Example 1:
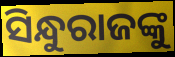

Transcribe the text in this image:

ସିନ୍ଧୁରାଜଙ୍କୁ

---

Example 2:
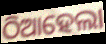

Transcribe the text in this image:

ଠିଆହେଲା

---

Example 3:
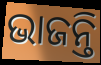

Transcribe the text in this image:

ଭାଜନ୍ତି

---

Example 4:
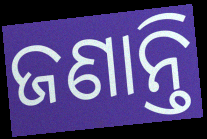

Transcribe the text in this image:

ଜଣାନ୍ତି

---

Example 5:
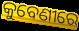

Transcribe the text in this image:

କୁବେଣୀରେ